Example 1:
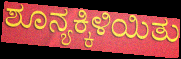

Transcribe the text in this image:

ಶೂನ್ಯಕ್ಕಿಳಿಯಿತು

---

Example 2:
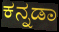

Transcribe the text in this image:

ಕನ್ನಡಾ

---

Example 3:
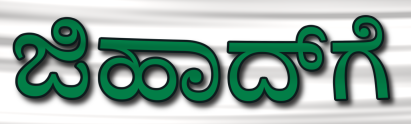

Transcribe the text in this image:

ಜಿಹಾದ್‌ಗೆ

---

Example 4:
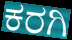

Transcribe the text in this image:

ಕರಗಿ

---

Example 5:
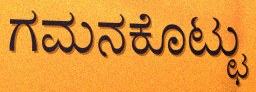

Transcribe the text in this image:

ಗಮನಕೊಟ್ಟು